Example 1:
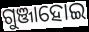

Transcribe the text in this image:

ଗୁଞ୍ଜାହୋଇ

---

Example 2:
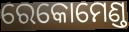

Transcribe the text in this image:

ରେକୋମେଣ୍ଡ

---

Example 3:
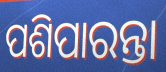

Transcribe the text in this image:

ପଶିପାରନ୍ତା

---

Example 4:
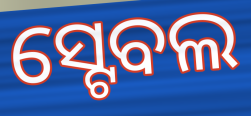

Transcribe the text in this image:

ସ୍ଟେବଲ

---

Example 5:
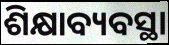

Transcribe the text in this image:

ଶିକ୍ଷାବ୍ୟବସ୍ଥା